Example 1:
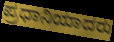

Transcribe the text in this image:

ಪ್ರಧಾನಿಯಾದರು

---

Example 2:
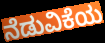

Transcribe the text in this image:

ನೆಡುವಿಕೆಯ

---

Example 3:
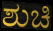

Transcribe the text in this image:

ಶುಚಿ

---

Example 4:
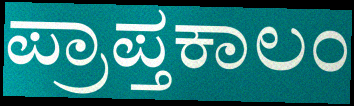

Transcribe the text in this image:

ಪ್ರಾಪ್ತಕಾಲಂ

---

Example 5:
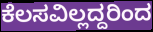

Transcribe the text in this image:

ಕೆಲಸವಿಲ್ಲದ್ದರಿಂದ